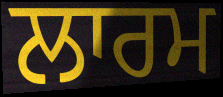
ਲਾਰਮ